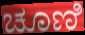
ಚೂಣಿ